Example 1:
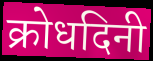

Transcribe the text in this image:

क्रोधदिनी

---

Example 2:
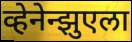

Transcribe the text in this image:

व्हेनेन्झुएला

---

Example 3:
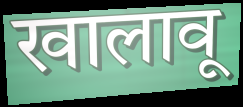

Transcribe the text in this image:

खालावू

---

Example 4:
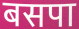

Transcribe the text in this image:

बसपा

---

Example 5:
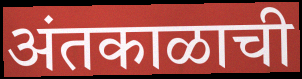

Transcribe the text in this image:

अंतकाळाची